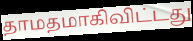
தாமதமாகிவிட்டது